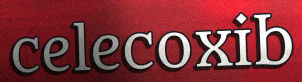
celecoxib